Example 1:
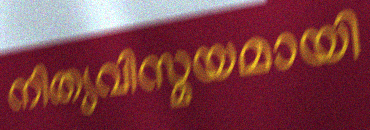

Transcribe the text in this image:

നിത്യവിസ്മയമായി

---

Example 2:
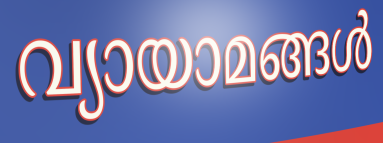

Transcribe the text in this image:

വ്യായാമങ്ങൾ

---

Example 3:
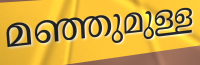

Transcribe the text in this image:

മഞ്ഞുമുള്ള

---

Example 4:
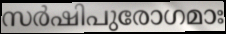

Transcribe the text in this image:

സർഷിപുരോഗമാഃ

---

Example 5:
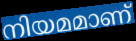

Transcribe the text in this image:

നിയമമാണ്